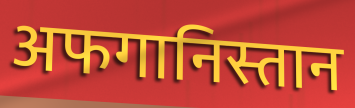
अफगानिस्तान